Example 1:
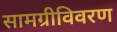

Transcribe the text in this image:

सामग्रीविवरण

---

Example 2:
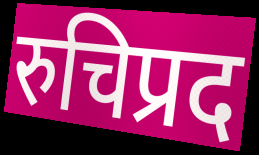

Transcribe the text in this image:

रुचिप्रद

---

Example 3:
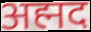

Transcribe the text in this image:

अह्मद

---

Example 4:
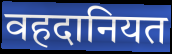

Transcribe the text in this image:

वहदानियत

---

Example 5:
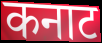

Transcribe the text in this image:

कनाट